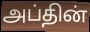
அப்தின்